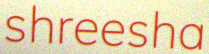
shreesha